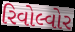
રિવોલ્વોર